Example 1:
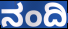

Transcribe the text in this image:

ನಂದಿ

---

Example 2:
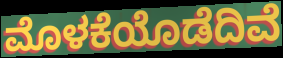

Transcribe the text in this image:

ಮೊಳಕೆಯೊಡೆದಿವೆ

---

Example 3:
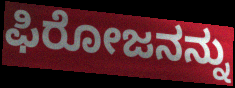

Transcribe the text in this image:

ಫಿರೋಜನನ್ನು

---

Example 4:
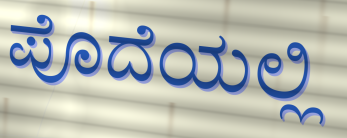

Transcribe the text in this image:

ಪೊದೆಯಲ್ಲಿ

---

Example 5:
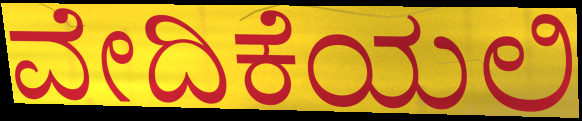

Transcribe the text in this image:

ವೇದಿಕೆಯಲಿ